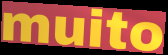
muito